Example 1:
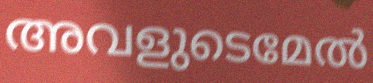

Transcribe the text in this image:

അവളുടെമേൽ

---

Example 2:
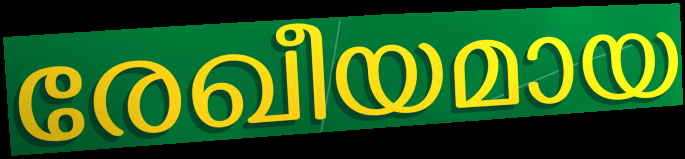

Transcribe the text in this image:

രേഖീയമായ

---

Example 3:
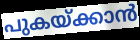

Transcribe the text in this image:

പുകയ്ക്കാൻ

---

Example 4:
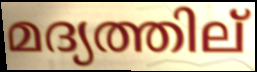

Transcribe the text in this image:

മദ്യത്തില്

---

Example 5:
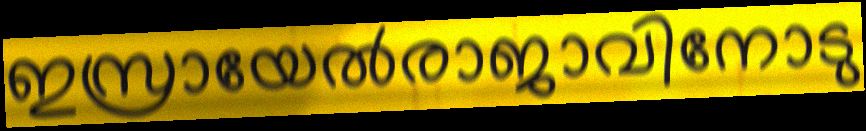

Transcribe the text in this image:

ഇസ്രായേൽരാജാവിനോടു